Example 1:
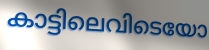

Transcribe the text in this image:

കാട്ടിലെവിടെയോ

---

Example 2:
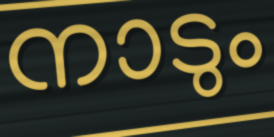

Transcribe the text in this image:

നാടും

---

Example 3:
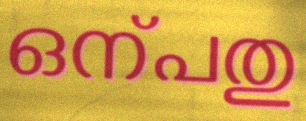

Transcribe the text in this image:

ഒന്പതു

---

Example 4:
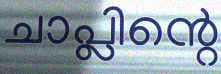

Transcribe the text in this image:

ചാപ്ലിന്റെ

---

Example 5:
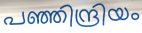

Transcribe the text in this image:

പഞ്ഞിന്ദ്രിയം